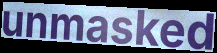
unmasked